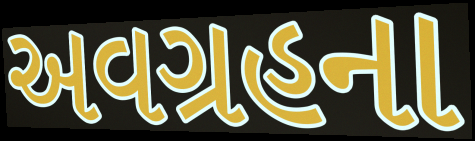
અવગ્રહના